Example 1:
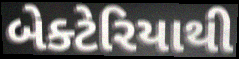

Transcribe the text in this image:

બેક્ટેરિયાથી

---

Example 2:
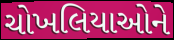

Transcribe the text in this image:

ચોખલિયાઓને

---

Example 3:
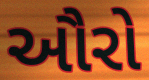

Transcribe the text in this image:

ઔરો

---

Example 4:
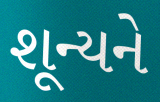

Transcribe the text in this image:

શૂન્યને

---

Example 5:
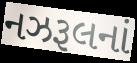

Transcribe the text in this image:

નઝરૂલનાં